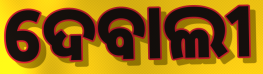
ଦେବାଲୀ